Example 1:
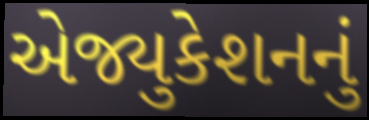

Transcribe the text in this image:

એજ્યુકેશનનું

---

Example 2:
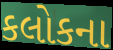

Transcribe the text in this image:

કલોકના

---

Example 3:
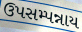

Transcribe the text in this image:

ઉપસમ્પન્નાય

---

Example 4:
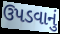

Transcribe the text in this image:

ઉપડવાનું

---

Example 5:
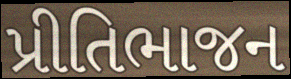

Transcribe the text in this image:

પ્રીતિભાજન